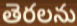
తెరలను